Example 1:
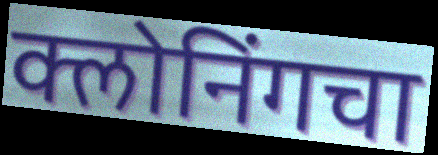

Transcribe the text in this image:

क्लोनिंगचा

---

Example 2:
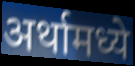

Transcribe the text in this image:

अर्थामध्ये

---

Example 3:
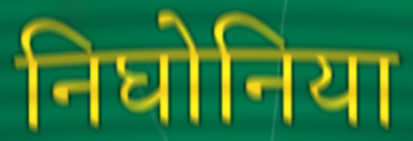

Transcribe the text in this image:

निघोनिया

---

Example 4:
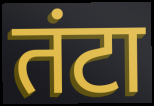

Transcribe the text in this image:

तंटा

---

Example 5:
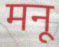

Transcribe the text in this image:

मनू